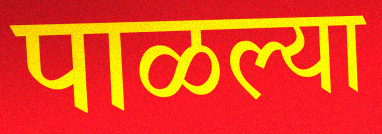
पाळल्या